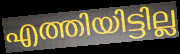
എത്തിയിട്ടില്ല